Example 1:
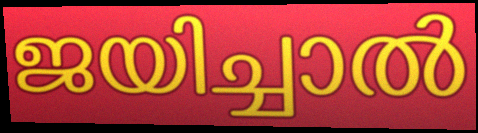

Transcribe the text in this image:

ജയിച്ചാൽ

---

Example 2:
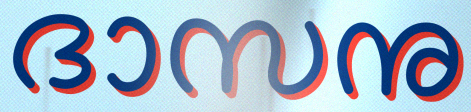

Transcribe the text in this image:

ദാസനു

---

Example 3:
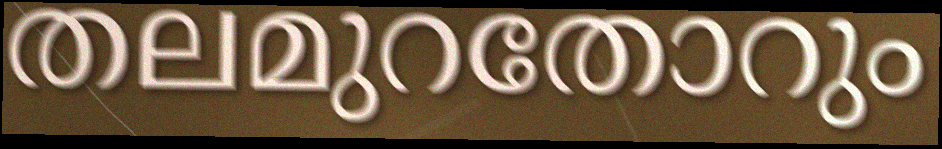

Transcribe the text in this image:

തലമുറതോറും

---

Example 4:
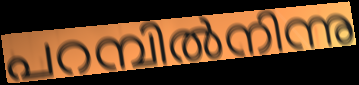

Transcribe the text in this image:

പറമ്പിൽനിന്നു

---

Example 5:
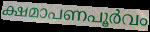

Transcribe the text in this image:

ക്ഷമാപണപൂർവം